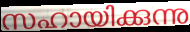
സഹായിക്കുന്നു